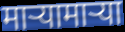
माऱ्यामाऱ्या